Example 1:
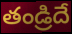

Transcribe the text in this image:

తండ్రిదే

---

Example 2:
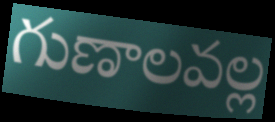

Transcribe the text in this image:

గుణాలవల్ల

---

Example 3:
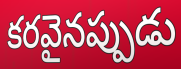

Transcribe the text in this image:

కరవైనప్పుడు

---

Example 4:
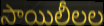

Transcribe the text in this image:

సాయిలీలల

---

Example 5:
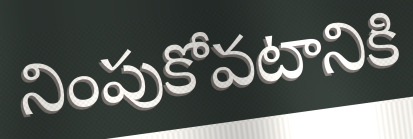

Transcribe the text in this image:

నింపుకోవటానికి